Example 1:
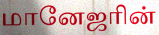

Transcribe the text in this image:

மானேஜரின்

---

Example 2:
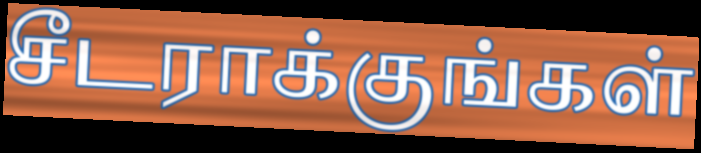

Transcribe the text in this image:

சீடராக்குங்கள்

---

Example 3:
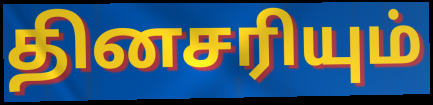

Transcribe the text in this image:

தினசரியும்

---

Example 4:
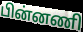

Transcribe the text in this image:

பின்னணி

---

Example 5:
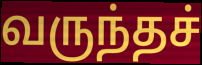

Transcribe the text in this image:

வருந்தச்